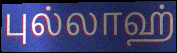
புல்லாஹ்